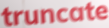
truncate